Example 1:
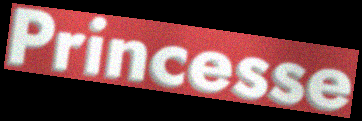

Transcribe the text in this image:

Princesse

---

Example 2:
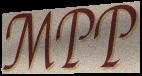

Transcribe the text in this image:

MPP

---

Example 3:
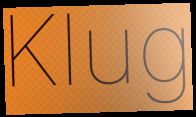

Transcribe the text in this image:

Klug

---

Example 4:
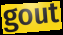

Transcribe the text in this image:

gout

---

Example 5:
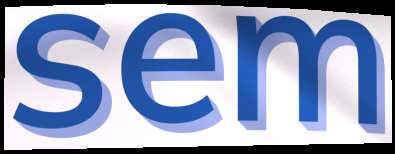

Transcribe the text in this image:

sem